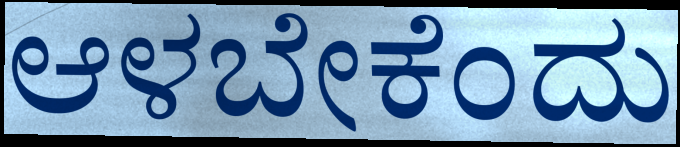
ಆಳಬೇಕೆಂದು